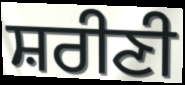
ਸ਼ਰੀਣੀ